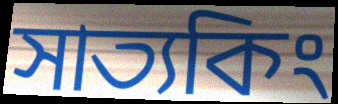
সাত্যকিং